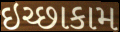
ઇચ્છાકામ